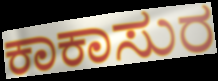
ಕಾಕಾಸುರ